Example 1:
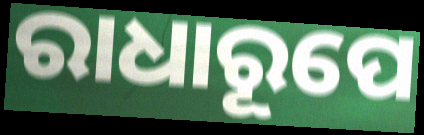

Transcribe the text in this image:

ରାଧାରୂପେ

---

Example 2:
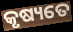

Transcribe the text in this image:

କୃଷ୍ୟତେ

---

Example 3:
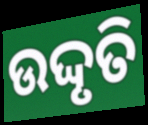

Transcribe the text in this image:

ଉଦ୍ଦୃତି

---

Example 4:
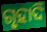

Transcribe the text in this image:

ଗୃହାଦି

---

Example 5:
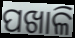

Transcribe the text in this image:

ପଖାଳି